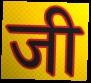
जी